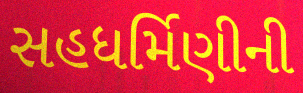
સહધર્મિણીની